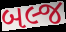
બલ્જ